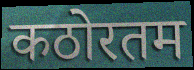
कठोरतम